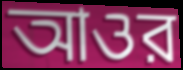
আওর